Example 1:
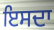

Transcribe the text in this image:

ਇਸਦਾ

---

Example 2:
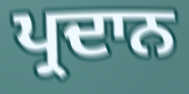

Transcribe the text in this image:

ਪ੍ਰਦਾਨ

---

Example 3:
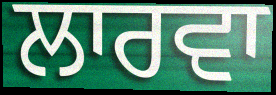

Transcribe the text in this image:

ਲਾਰਵਾ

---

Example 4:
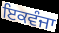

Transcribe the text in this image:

ਇਕਵੰਜਾ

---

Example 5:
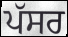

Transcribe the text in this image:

ਪੱਸਰ